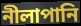
নীলাপানি